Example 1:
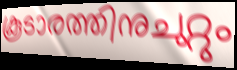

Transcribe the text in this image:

കൂടാരത്തിനുചുറ്റും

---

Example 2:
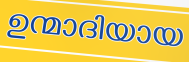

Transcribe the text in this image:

ഉന്മാദിയായ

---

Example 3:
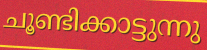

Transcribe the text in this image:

ചൂണ്ടിക്കാട്ടുന്നു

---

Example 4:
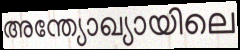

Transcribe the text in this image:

അന്ത്യോഖ്യായിലെ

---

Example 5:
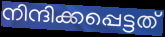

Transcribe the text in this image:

നിന്ദിക്കപ്പെട്ടത്